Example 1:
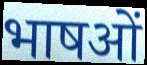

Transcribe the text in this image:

भाषओं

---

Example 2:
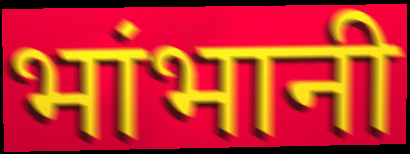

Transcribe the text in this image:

भांभानी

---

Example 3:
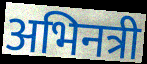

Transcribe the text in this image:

अभिनत्री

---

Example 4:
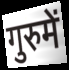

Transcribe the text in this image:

गुरुमें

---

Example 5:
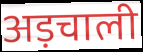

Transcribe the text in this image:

अड़चाली